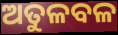
ଅତୁଳବଳ